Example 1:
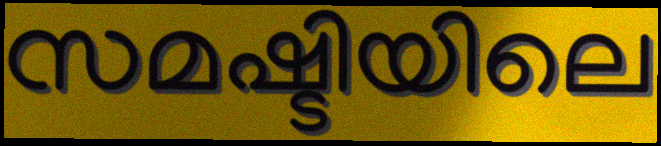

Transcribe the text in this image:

സമഷ്ടിയിലെ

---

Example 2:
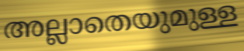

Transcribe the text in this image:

അല്ലാതെയുമുള്ള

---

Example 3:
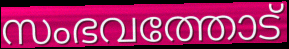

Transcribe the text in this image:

സംഭവത്തോട്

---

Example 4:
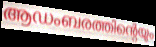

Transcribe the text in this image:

ആഡംബരത്തിന്റെയും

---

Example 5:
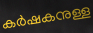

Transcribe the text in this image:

കർഷകനുള്ള